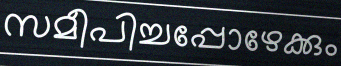
സമീപിച്ചപ്പോഴേക്കും